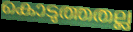
കൊടുത്തതല്ല